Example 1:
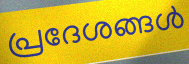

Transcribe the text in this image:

പ്രദേശങ്ങൾ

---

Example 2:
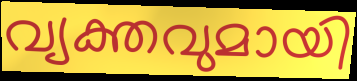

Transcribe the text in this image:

വ്യക്തവുമായി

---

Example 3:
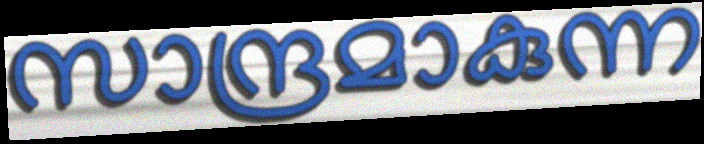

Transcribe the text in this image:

സാന്ദ്രമാകുന്ന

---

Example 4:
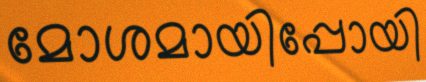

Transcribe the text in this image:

മോശമായിപ്പോയി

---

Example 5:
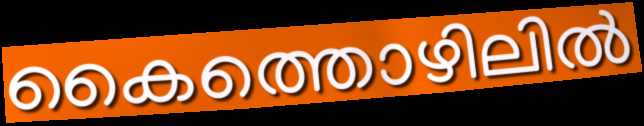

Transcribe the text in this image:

കൈത്തൊഴിലിൽ